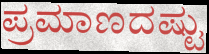
ಪ್ರಮಾಣದಷ್ಟು